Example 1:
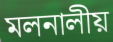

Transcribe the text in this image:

মলনালীয়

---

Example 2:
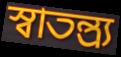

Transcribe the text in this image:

স্বাতন্ত্র্য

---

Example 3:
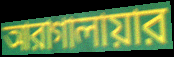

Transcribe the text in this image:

আরাগালায়ার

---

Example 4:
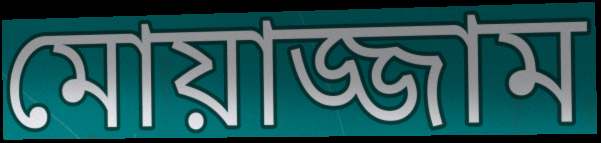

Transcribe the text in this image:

মোয়াজ্জাম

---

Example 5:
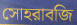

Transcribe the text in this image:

সোহরাবজি